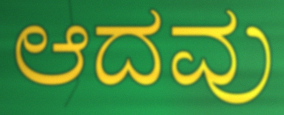
ಆದವು